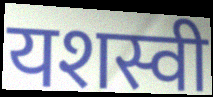
यशस्‍वी